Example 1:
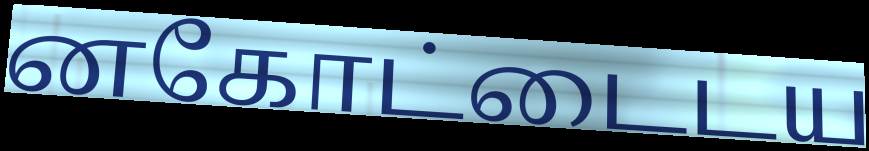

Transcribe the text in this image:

னகோட்டைடய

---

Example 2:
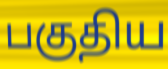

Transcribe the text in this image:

பகுதிய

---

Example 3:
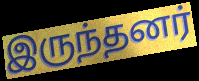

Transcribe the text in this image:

இருந்தனர்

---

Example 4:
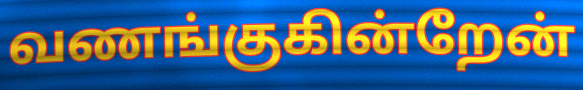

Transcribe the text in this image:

வணங்குகின்றேன்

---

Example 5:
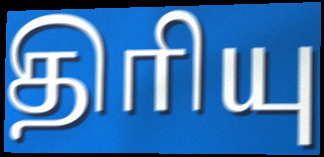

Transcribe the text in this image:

திரியு